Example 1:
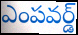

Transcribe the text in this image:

ఎంపవర్డ్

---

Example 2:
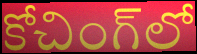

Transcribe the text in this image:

కోచింగ్‌లో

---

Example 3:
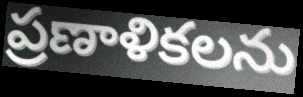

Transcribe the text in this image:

ప్రణాళికలను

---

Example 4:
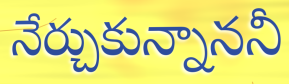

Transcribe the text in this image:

నేర్చుకున్నాననీ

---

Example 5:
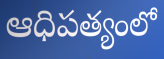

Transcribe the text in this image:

ఆధిపత్యంలో